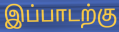
இப்பாடற்கு